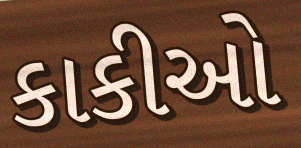
કાકીઓ